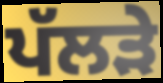
ਪੱਲੜੇ